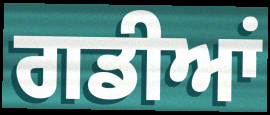
ਗਡੀਆਂ